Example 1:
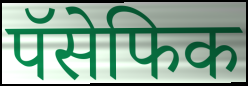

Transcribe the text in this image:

पॅसेफिक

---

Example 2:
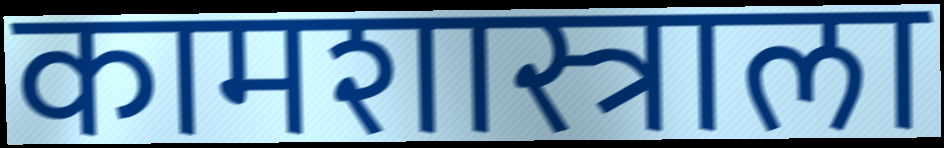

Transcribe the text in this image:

कामशास्त्राला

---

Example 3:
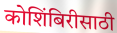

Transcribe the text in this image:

कोशिंबिरीसाठी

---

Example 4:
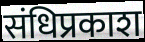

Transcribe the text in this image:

संधिप्रकाश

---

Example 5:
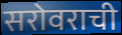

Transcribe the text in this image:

सरोवराची